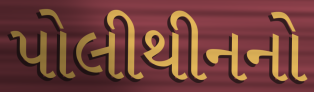
પોલીથીનનો